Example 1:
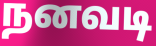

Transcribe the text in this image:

நனவடி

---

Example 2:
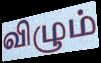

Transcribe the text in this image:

விழும்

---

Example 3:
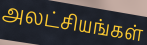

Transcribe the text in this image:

அலட்சியங்கள்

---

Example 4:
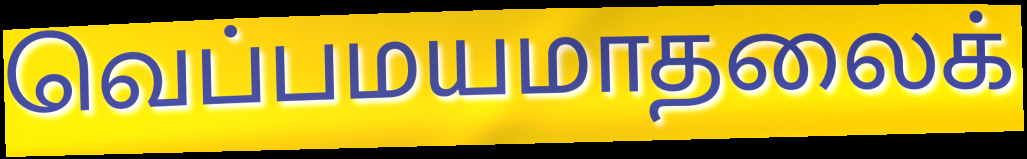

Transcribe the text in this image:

வெப்பமயமாதலைக்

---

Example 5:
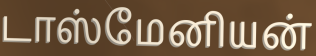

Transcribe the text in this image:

டாஸ்மேனியன்